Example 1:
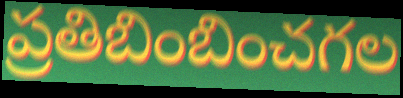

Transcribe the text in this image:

ప్రతిబింబించగల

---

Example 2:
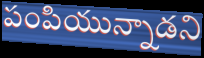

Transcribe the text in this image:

పంపియున్నాడని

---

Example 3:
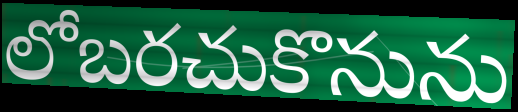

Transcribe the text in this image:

లోబరచుకొనును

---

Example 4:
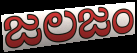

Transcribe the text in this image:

జలజం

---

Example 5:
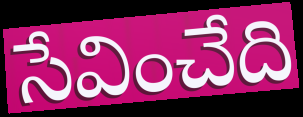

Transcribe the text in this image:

సేవించేది